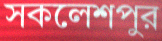
সকলেশপুর